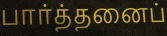
பார்த்தனைப்